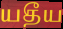
யதீய